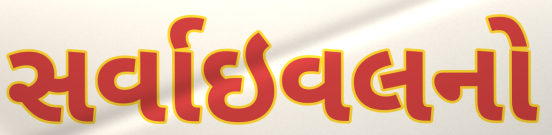
સર્વાઇવલનો